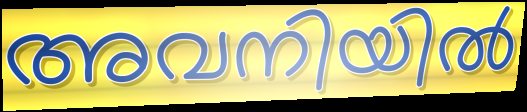
അവനിയിൽ